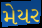
મેયર